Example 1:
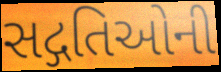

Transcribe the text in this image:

સદ્ગતિઓની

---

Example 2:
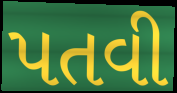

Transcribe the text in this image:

પતવી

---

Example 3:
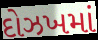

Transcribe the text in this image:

દોઝખમાં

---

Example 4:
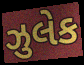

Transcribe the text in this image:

ઝુલેક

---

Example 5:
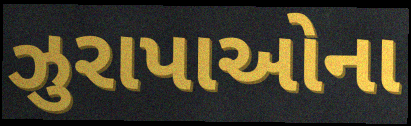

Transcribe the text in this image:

ઝુરાપાઓના